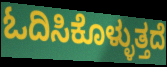
ಓದಿಸಿಕೊಳ್ಳುತ್ತದೆ